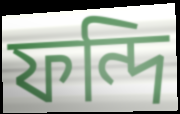
ফন্দি